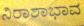
ನಿರಾಶಾಭಾವ